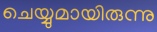
ചെയ്യുമായിരുന്നു